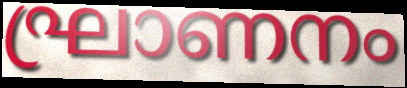
ഘ്രാണനം